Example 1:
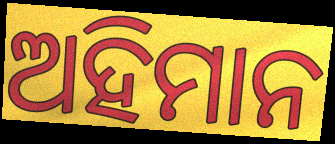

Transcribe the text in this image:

ଅହିମାନ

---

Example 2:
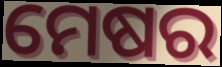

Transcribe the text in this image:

ମେଷର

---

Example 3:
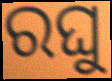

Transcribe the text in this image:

ରଘୁ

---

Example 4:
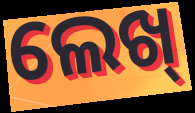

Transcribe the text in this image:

ଲେଖ୍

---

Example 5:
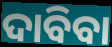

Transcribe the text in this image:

ଦାବିବା